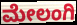
ಮೇಲಂಗಿ